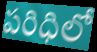
పరిధిలో